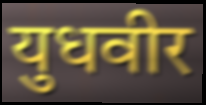
युधवीर